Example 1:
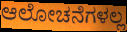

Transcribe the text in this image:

ಆಲೋಚನೆಗಳಲ್ಲ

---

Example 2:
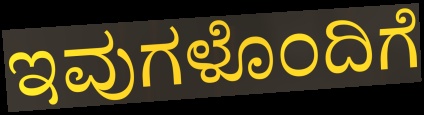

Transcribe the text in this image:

ಇವುಗಳೊಂದಿಗೆ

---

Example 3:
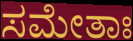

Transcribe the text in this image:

ಸಮೇತಾಃ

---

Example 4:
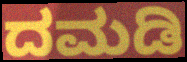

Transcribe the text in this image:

ದಮಡಿ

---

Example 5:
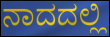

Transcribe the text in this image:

ನಾದದಲ್ಲಿ